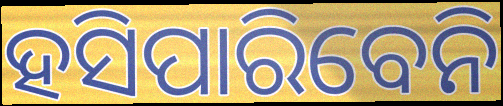
ହସିପାରିବେନି